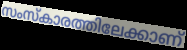
സംസ്കാരത്തിലേക്കാണ്